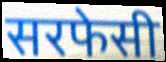
सरफेसी